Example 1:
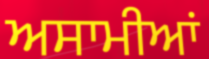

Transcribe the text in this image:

ਅਸਾਮੀਆਂ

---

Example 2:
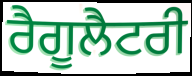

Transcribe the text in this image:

ਰੈਗੂਲੈਟਰੀ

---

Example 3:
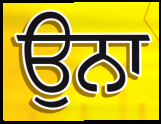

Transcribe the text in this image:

ਉਨਾ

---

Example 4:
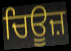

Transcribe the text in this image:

ਚਿਊਜ਼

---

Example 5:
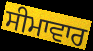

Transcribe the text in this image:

ਸੀਮਾਵਾਰ